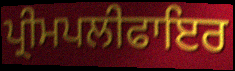
ਪ੍ਰੀਮਪਲੀਫਾਇਰ